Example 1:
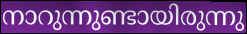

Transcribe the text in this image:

നാറുന്നുണ്ടായിരുന്നു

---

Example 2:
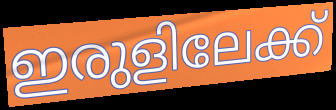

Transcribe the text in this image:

ഇരുളിലേക്ക്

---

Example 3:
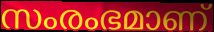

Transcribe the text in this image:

സംരംഭമാണ്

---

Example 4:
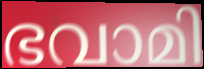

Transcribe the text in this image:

ഭവാമി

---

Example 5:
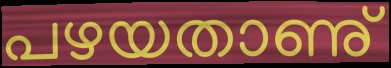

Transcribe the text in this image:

പഴയതാണു്